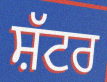
ਸ਼ੱਟਰ